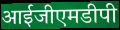
आईजीएमडीपी